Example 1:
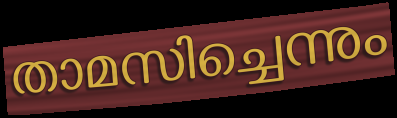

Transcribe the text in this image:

താമസിച്ചെന്നും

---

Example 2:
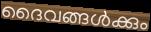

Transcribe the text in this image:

ദൈവങ്ങൾക്കും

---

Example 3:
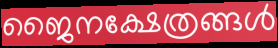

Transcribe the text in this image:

ജൈനക്ഷേത്രങ്ങൾ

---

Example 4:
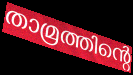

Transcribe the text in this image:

താമ്രത്തിന്റെ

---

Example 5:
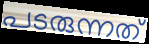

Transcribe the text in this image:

പടരുന്നത്